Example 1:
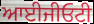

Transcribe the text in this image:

ਆਈਜੀਓਟੀ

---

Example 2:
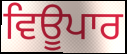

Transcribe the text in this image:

ਵਿਊਪਾਰ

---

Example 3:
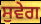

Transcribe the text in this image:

ਸੁਵੇਗ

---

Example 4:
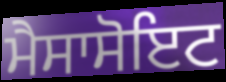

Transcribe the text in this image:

ਮੈਸਾਸੋਇਟ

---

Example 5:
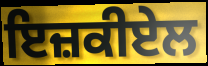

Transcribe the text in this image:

ਇਜ਼ਕੀਏਲ